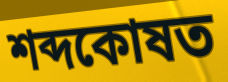
শব্দকোষত